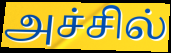
அச்சில்